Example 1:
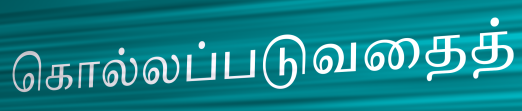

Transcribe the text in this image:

கொல்லப்படுவதைத்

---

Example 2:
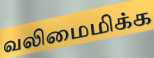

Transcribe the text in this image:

வலிமைமிக்க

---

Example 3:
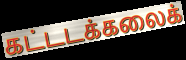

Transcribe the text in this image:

கட்டடக்கலைக்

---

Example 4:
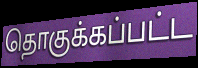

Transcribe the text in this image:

தொகுக்கப்பட்ட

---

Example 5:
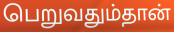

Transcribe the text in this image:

பெறுவதும்தான்